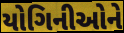
યોગિનીઓને